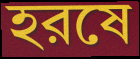
হরষে